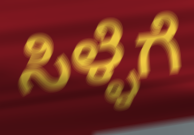
ಸಿಳ್ಳೆಗೆ